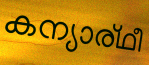
കന്യാര്ഥീ